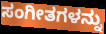
ಸಂಗೀತಗಳನ್ನು